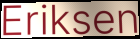
Eriksen